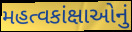
મહત્વકાંક્ષાઓનું